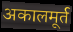
अकालमूर्त